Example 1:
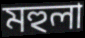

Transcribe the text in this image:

মহুলা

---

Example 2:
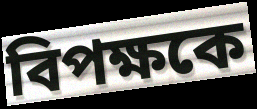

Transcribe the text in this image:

বিপক্ষকে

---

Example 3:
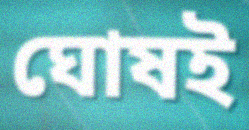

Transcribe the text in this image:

ঘোষই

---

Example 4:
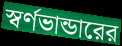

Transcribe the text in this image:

স্বর্ণভান্ডারের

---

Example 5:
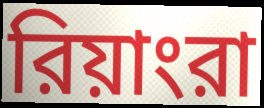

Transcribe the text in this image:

রিয়াংরা